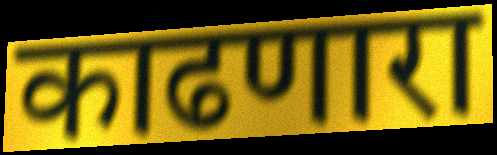
काढणारा